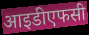
आइडीएफसी